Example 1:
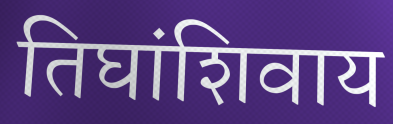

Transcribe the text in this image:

तिघांशिवाय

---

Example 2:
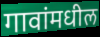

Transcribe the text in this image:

गावांमधील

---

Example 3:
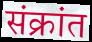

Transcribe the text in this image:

संक्रांत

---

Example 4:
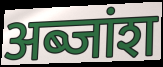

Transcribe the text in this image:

अब्जांश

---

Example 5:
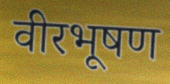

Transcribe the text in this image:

वीरभूषण